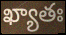
ఖ్యాతః